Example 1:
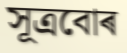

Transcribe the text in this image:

সূত্ৰবোৰ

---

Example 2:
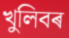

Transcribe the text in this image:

খুলিবৰ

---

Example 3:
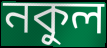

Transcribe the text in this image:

নকুল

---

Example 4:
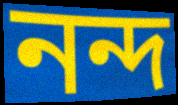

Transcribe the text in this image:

নন্দ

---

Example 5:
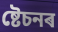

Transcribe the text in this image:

ষ্টেচনৰ